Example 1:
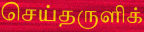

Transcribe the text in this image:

செய்தருளிக்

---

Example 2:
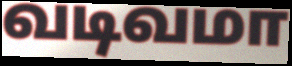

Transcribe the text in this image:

வடிவமா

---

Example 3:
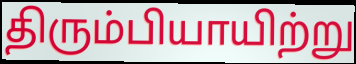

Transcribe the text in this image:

திரும்பியாயிற்று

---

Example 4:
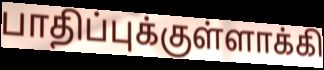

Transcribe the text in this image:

பாதிப்புக்குள்ளாக்கி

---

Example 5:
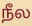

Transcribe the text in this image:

நீல